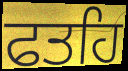
ਫਤਹਿ